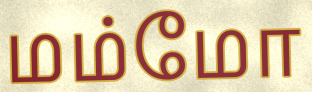
மம்மோ